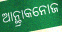
ଆନ୍ଥ୍ରାକନୋଜ